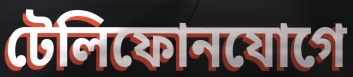
টেলিফোনযোগে